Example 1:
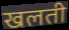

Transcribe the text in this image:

खलती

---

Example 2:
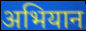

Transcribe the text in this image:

अभियान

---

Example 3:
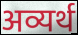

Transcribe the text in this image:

अव्यर्थ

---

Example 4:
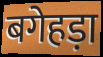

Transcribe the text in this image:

बगेहड़ा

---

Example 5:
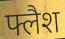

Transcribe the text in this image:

फ्लैश